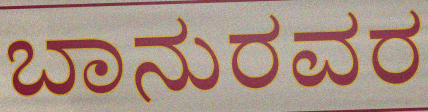
ಬಾನುರವರ